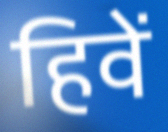
हिवें